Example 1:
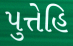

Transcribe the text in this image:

પુત્તેહિ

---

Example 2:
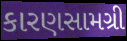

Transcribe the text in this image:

કારણસામગ્રી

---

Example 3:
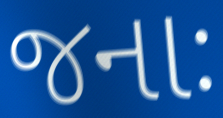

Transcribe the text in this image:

જનાઃ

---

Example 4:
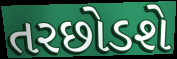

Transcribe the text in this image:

તરછોડશે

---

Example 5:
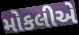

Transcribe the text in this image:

મોકલીએ